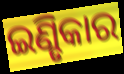
ଇଣ୍ଡିକାର